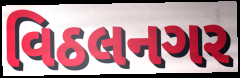
વિઠલનગર